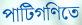
পাটিগণিতে